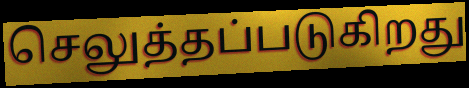
செலுத்தப்படுகிறது